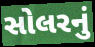
સોલરનું